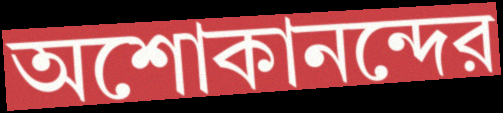
অশোকানন্দের